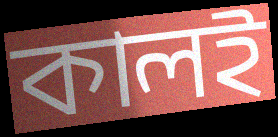
কালই